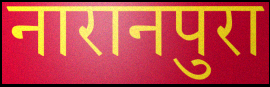
नारानपुरा